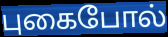
புகைபோல்